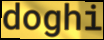
doghi